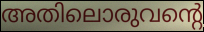
അതിലൊരുവന്റെ